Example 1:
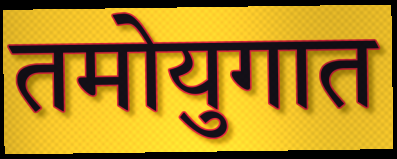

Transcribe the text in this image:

तमोयुगात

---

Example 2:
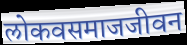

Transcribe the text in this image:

लोकवसमाजजीवन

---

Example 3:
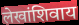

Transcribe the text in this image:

लेखांशिवाय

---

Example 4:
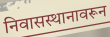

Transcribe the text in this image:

निवासस्थानावरून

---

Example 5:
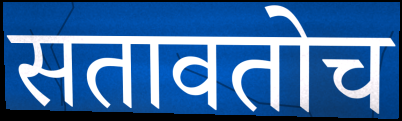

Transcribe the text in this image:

सतावतोच